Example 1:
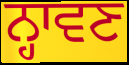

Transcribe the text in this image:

ਨ੍ਹਾਵਣ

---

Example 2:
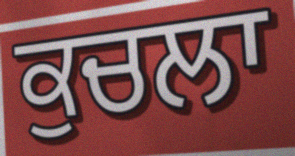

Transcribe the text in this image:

ਕੁਚਲਾ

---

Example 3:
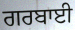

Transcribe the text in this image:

ਗਰਬਾਈ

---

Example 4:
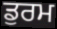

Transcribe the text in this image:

ਡੁਰਮ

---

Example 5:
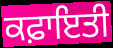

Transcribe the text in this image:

ਕਫ਼ਾਇਤੀ